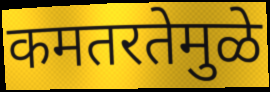
कमतरतेमुळे